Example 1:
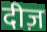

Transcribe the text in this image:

दीज़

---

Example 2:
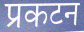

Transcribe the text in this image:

प्रकटन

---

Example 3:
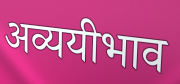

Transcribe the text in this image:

अव्ययीभाव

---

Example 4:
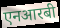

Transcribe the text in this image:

एनआरबी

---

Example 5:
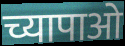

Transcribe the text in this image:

च्यापाओ